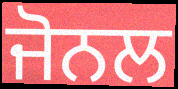
ਜੋਨਲ